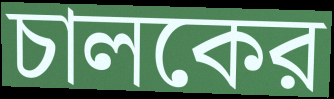
চালকের